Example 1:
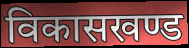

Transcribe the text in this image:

विकासखण्‍ड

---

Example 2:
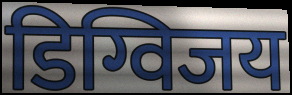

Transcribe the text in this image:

डिग्विजय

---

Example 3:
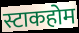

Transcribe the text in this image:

स्टाकहोम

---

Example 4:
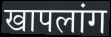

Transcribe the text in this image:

खापलांग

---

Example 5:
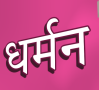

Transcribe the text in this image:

धर्मन